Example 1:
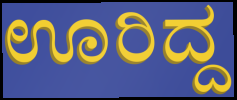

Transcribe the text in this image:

ಊರಿದ್ದ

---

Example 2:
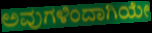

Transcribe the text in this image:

ಅವುಗಳಿಂದಾಗಿಯೇ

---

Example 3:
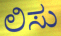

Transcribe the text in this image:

ಲಿಸು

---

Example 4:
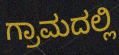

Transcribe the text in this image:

ಗ್ರಾಮದಲ್ಲಿ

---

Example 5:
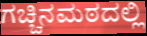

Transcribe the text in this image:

ಗಚ್ಚಿನಮಠದಲ್ಲಿ